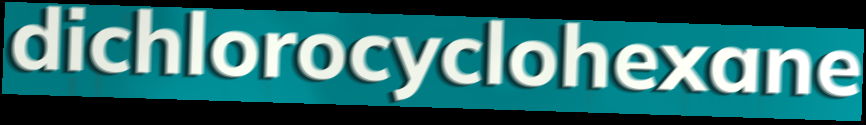
dichlorocyclohexane